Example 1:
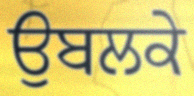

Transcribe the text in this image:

ਉਬਲਕੇ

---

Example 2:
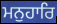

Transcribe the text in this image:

ਮਨੁਹਾਰਿ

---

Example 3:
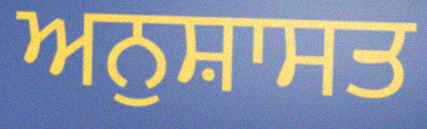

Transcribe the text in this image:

ਅਨੁਸ਼ਾਸਤ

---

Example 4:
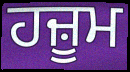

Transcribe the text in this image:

ਹਜ਼ੂਮ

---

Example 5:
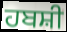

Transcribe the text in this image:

ਹਬਸ਼ੀ